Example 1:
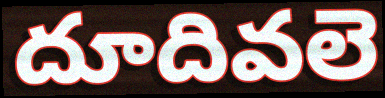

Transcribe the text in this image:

దూదివలె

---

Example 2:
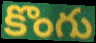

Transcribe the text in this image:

కొంగు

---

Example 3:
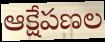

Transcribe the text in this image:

ఆక్షేపణల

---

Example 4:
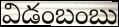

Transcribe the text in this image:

విడంబంబు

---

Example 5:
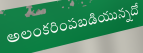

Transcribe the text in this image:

అలంకరింపబడియున్నదో